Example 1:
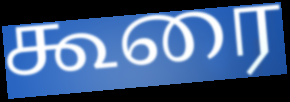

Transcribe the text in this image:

கூரை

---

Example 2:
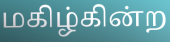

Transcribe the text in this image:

மகிழ்கின்ற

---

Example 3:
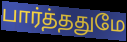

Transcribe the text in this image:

பார்த்ததுமே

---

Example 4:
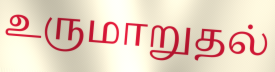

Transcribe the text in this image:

உருமாறுதல்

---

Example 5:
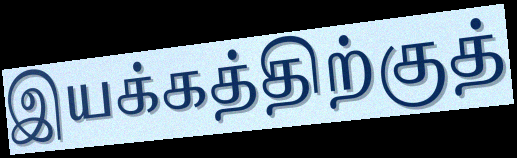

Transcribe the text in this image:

இயக்கத்திற்குத்